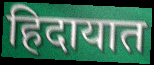
हिदायात